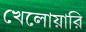
খেলোয়ারি